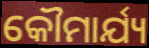
କୌମାର୍ଯ୍ୟ